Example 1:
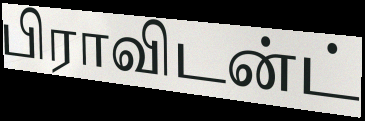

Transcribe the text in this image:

பிராவிடன்ட்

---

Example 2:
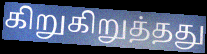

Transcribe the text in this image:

கிறுகிறுத்தது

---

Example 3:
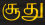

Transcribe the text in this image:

சூது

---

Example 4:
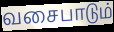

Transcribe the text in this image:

வசைபாடும்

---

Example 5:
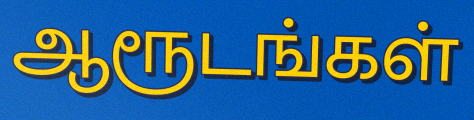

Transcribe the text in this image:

ஆரூடங்கள்